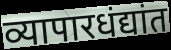
व्यापारधंद्यांत